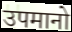
उपमानो